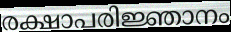
രക്ഷാപരിജ്ഞാനം